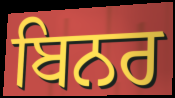
ਬਿਨਰ